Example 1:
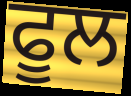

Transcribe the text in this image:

ਫੂਲ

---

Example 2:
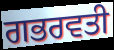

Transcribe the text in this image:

ਗਭਰਵਤੀ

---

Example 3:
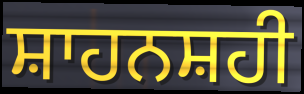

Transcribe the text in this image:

ਸ਼ਾਹਨਸ਼ਹੀ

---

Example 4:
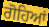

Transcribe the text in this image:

ਗੋਹਿਆਂ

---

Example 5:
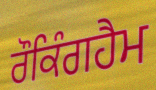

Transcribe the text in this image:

ਰੌਕਿੰਗਹੈਮ